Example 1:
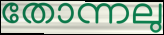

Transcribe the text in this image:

തോന്നലു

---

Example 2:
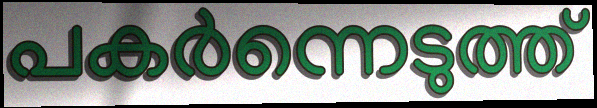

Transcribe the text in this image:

പകർന്നെടുത്ത്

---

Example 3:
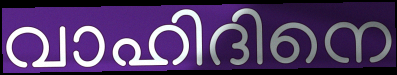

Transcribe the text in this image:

വാഹിദിനെ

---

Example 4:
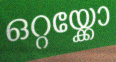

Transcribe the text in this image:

ഒറ്റയ്ക്കോ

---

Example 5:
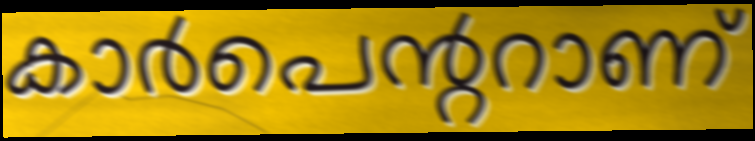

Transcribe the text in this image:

കാർപെന്ററാണ്